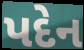
પદેન